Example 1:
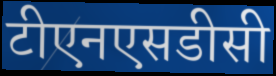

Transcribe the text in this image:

टीएनएसडीसी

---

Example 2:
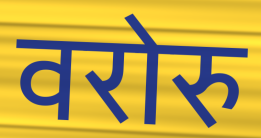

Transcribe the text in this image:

वरोरु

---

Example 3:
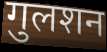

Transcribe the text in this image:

गुलशन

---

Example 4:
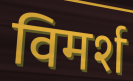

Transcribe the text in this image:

विमर्श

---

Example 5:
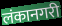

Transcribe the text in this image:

लंकानगरी